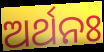
ଅର୍ଥନଃ